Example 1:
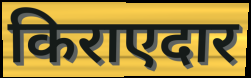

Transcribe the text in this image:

किराएदार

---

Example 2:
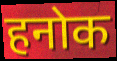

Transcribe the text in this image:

हनोक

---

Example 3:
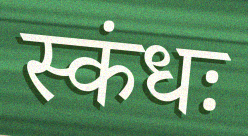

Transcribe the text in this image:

स्कंधः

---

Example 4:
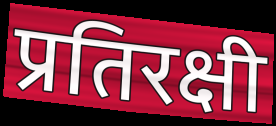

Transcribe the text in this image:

प्रतिरक्षी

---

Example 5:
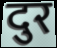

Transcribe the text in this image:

दुर